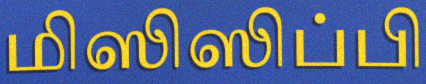
மிஸிஸிப்பி